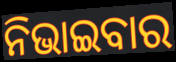
ନିଭାଇବାର